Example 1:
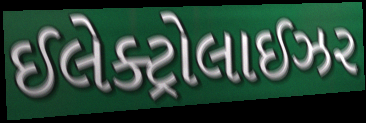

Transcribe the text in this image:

ઈલેક્ટ્રોલાઈઝર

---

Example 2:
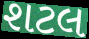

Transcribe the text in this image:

શટલ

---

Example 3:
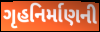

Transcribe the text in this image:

ગૃહનિર્માણની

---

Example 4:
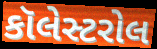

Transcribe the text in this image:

કૉલેસ્ટરોલ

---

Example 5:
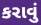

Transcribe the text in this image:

કરાવું